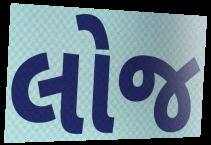
લોજ